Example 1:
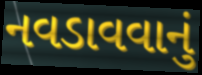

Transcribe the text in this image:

નવડાવવાનું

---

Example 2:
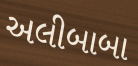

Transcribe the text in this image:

અલીબાબા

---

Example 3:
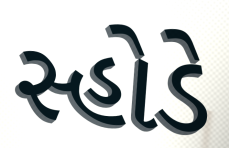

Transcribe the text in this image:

સ્હોડે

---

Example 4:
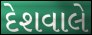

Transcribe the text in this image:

દેશવાલે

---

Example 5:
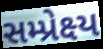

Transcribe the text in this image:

સમ્પ્રેક્ષ્ય